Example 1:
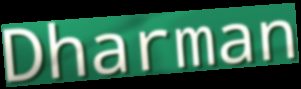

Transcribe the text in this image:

Dharman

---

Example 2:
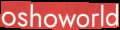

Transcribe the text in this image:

oshoworld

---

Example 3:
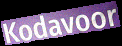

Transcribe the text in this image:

Kodavoor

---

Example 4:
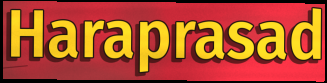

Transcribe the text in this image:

Haraprasad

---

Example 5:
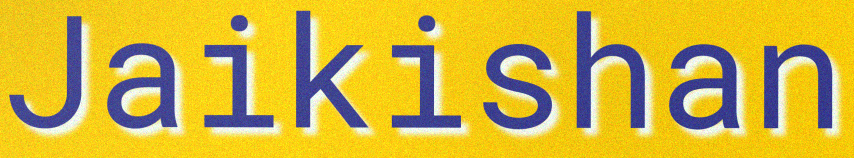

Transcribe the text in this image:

Jaikishan